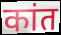
कांत